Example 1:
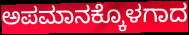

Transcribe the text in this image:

ಅಪಮಾನಕ್ಕೊಳಗಾದ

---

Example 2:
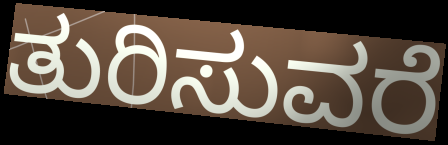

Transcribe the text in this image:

ತುರಿಸುವರೆ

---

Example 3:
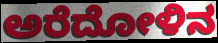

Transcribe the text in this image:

ಅರೆದೋಳಿನ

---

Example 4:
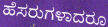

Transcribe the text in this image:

ಹೆಸರುಗಳಾದರೂ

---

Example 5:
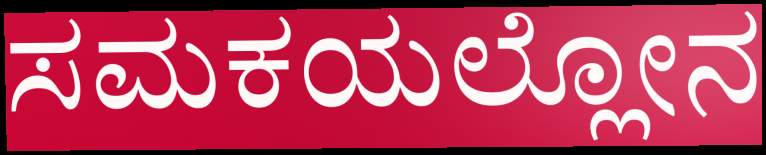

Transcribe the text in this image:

ಸಮಕಯಲ್ಲೋನ